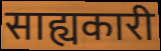
साह्यकारी